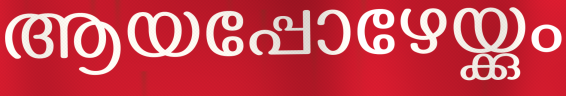
ആയപ്പോഴേയ്ക്കും